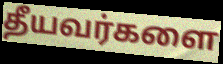
தீயவர்களை